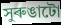
সুৰুঙাটো